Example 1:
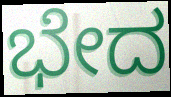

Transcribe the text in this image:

ಭೇದ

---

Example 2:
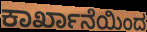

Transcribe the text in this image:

ಕಾರ್ಖಾನೆಯಿಂದ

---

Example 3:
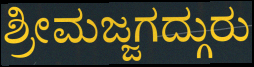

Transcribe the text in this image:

ಶ್ರೀಮಜ್ಜಗದ್ಗುರು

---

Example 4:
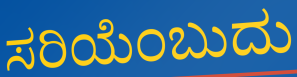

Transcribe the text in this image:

ಸರಿಯೆಂಬುದು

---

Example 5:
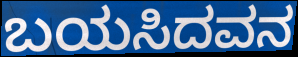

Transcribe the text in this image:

ಬಯಸಿದವನ